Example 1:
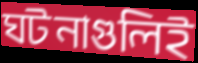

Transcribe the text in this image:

ঘটনাগুলিই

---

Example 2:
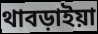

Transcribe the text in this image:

থাবড়াইয়া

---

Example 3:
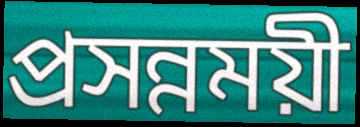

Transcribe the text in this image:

প্রসন্নময়ী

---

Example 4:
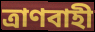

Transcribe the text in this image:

ত্রাণবাহী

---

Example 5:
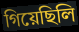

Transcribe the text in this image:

গিয়েছিলি